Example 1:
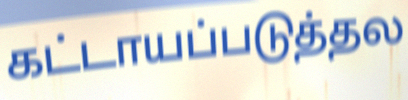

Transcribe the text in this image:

கட்டாயப்படுத்தல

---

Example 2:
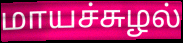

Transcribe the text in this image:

மாயச்சுழல்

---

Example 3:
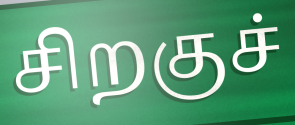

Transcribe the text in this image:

சிறகுச்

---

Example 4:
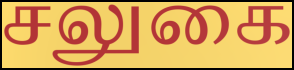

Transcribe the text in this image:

சலுகை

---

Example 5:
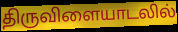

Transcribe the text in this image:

திருவிளையாடலில்